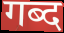
गब्द